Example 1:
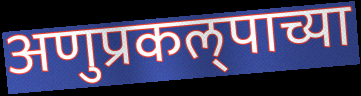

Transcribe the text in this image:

अणुप्रकल्पाच्या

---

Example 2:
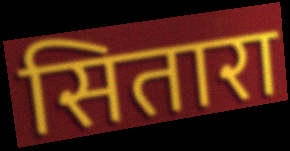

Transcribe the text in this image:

सितारा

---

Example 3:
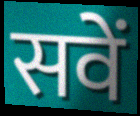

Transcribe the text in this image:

सवें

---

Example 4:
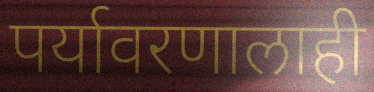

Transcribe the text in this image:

पर्यावरणालाही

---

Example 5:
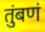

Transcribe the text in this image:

तुंबणं